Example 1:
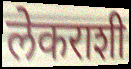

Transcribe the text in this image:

लेकराशी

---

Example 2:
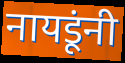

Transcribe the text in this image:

नायडूंनी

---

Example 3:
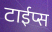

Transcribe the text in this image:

टाईप्स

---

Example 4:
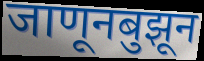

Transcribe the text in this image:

जाणूनबुझून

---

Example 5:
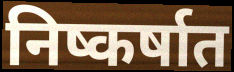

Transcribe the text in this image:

निष्कर्षात